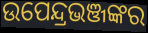
ଉପେନ୍ଦ୍ରଭଞ୍ଜଙ୍କର